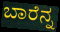
ಬಾರೆನ್ನ